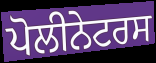
ਪੋਲੀਨੇਟਰਸ